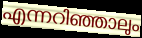
എന്നറിഞ്ഞാലും